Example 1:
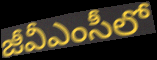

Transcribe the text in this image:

జీవీఎంసీలో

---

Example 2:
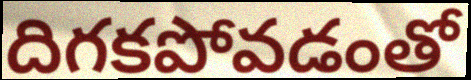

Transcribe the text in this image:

దిగకపోవడంతో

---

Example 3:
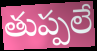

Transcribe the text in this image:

తుప్పలే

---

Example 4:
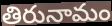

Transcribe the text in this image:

తిరునామం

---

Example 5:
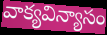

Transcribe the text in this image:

వాక్యవిన్యాసం